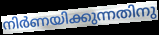
നിർണയിക്കുന്നതിനു